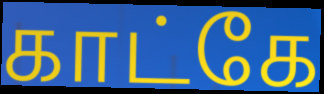
காட்கே